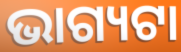
ଭାଗ୍ୟଟା